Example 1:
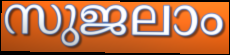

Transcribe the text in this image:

സുജലാം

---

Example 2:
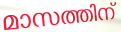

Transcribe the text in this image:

മാസത്തിന്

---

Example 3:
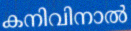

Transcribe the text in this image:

കനിവിനാൽ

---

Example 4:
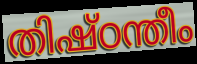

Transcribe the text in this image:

തിഷ്ഠന്തീം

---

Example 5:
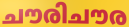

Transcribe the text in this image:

ചൗരിചൗര